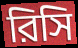
রিসি